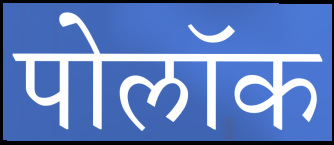
पोलॉक